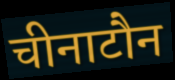
चीनाटौन